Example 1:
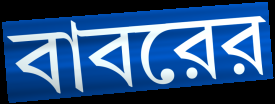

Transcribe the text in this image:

বাবরের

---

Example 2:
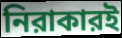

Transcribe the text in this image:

নিরাকারই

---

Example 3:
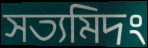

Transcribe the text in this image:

সত্যমিদং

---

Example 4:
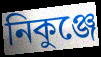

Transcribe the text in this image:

নিকুঞ্জে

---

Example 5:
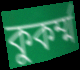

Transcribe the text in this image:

কুকর্ম্ম